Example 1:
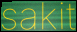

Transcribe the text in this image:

sakit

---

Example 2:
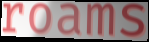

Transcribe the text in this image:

roams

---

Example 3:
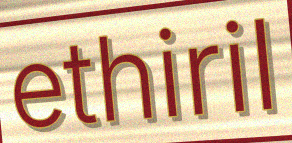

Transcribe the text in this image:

ethiril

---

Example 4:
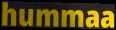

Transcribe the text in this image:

hummaa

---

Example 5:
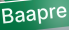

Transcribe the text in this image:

Baapre